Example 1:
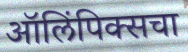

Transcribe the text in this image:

ऑलिंपिक्सचा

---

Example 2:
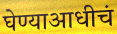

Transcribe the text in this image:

घेण्याआधीचं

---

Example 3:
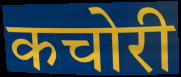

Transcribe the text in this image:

कचोरी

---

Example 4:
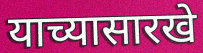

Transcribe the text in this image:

याच्यासारखे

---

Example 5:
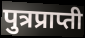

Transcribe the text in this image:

पुत्रप्राप्ती